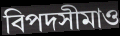
বিপদসীমাও